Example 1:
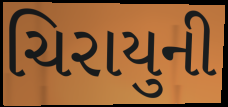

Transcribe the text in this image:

ચિરાયુની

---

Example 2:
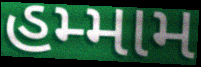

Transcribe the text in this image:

હમ્મામ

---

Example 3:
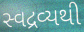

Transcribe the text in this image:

સ્વદ્રવ્યથી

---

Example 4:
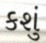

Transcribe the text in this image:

કશું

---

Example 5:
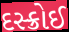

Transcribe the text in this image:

દસ્ક્રોઈ